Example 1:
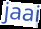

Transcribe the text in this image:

jaai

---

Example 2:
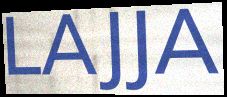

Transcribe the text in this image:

LAJJA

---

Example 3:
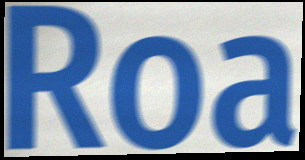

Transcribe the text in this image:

Roa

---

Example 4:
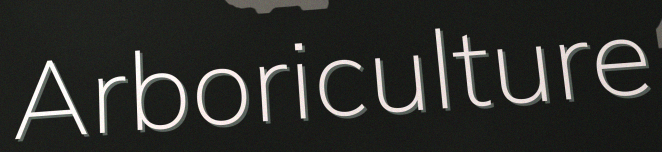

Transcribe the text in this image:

Arboriculture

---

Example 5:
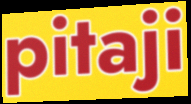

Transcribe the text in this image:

pitaji